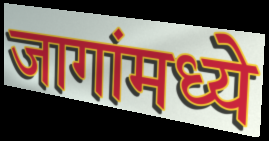
जागांमध्ये